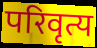
परिवृत्य